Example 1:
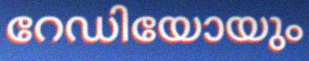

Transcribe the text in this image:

റേഡിയോയും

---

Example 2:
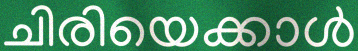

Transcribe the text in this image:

ചിരിയെക്കാൾ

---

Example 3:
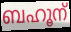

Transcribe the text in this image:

ബഹൂന്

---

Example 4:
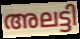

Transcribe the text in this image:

അലട്ടി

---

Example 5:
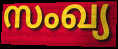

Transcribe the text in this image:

സംഖ്യ